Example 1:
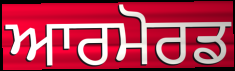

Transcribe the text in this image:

ਆਰਮੋਰਡ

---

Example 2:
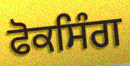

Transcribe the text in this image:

ਫੋਕਸਿੰਗ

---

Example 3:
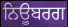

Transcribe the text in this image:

ਨਿਊਬਰਗ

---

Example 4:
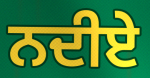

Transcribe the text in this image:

ਨਦੀਏ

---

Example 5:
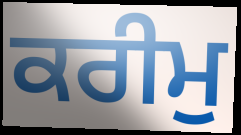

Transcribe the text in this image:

ਕਰੀਮੁ